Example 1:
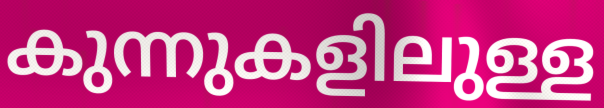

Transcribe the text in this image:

കുന്നുകളിലുള്ള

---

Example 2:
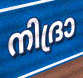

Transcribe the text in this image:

നിദ്രാ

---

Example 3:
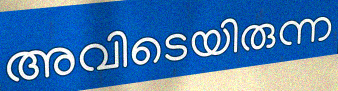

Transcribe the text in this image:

അവിടെയിരുന്ന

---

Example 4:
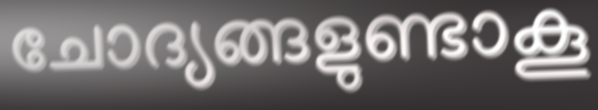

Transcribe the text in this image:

ചോദ്യങ്ങളുണ്ടാകൂ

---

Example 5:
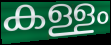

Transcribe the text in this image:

കള്ളം